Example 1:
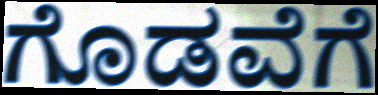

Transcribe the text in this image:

ಗೊಡವೆಗೆ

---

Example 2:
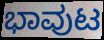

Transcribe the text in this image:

ಭಾವುಟ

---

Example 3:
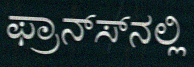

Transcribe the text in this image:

ಫ್ರಾನ್ಸ್‍ನಲ್ಲಿ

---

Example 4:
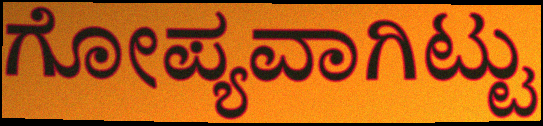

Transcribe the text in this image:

ಗೋಪ್ಯವಾಗಿಟ್ಟು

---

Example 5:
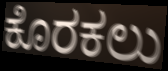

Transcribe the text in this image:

ಕೊರಕಲು